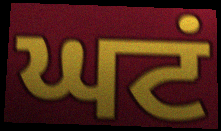
ਘਟਂ